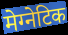
मेग्नेटिक